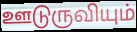
ஊடுருவியும்